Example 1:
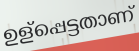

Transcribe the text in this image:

ഉള്പ്പെട്ടതാണ്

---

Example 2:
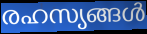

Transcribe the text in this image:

രഹസ്യങ്ങൾ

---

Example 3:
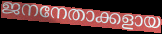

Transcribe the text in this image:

ജനനേതാക്കളായ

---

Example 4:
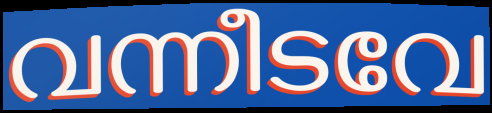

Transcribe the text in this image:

വന്നീടവേ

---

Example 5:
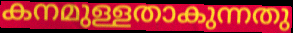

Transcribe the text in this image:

കനമുള്ളതാകുന്നതു